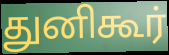
துனிகூர்